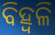
ବିହ୍ୱଳି